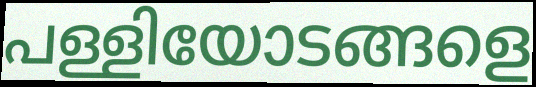
പള്ളിയോടങ്ങളെ